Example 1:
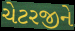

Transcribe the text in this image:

ચેટરજીને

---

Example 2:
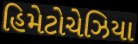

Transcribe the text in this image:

હિમેટોચેઝિયા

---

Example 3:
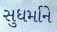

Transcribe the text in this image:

સુધર્માને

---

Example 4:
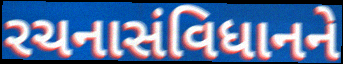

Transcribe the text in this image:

રચનાસંવિધાનને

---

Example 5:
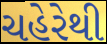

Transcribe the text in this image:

ચહેરેથી